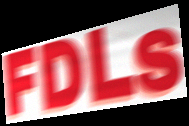
FDLs